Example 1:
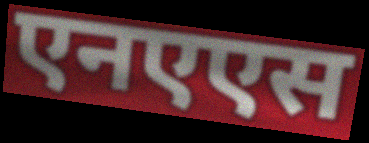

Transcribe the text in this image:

एनएएस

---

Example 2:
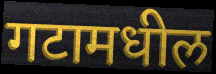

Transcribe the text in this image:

गटामधील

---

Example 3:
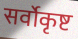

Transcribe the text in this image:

सर्वोकृष्ट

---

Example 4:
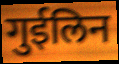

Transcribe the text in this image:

गुईलिन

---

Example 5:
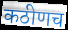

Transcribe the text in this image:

कठीणच